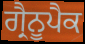
ਗ੍ਰੈਨੂਪੈਕ